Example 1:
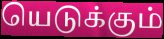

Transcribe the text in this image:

யெடுக்கும்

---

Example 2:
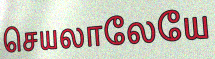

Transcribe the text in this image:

செயலாலேயே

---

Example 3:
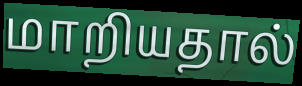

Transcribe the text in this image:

மாறியதால்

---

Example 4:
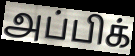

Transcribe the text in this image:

அப்பிக்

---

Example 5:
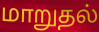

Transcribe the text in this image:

மாறுதல்